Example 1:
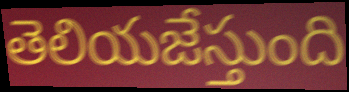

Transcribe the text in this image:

తెలియజేస్తుంది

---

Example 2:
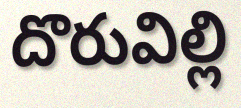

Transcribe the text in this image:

దొరువిల్లి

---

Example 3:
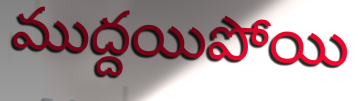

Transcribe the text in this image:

ముద్దయిపోయి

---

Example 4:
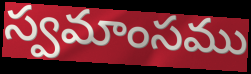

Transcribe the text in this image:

స్వమాంసము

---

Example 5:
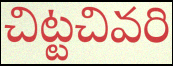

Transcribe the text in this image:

చిట్టచివరి